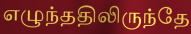
எழுந்ததிலிருந்தே